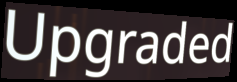
Upgraded